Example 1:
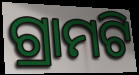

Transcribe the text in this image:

ଗ୍ରାମଟି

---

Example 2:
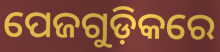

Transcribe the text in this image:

ପେଜଗୁଡ଼ିକରେ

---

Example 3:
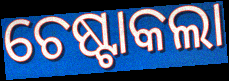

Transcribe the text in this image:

ଚେଷ୍ଟାକଲା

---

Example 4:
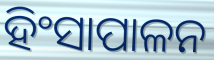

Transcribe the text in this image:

ହିଂସାପାଳନ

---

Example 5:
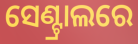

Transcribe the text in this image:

ସେଣ୍ଟ୍ରାଲରେ